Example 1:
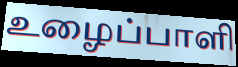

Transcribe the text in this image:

உழைப்பாளி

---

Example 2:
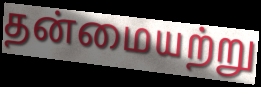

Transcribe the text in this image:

தன்மையற்று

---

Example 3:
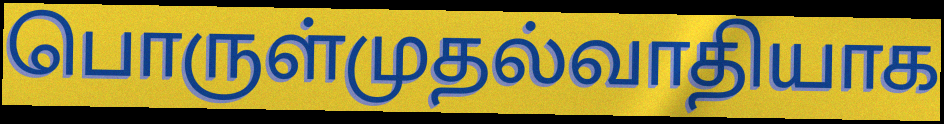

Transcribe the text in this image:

பொருள்முதல்வாதியாக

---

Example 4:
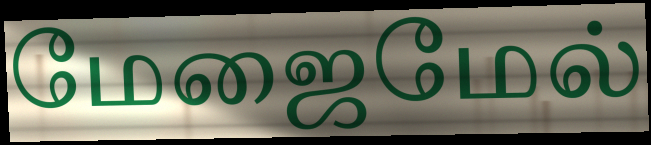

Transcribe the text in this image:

மேஜைமேல்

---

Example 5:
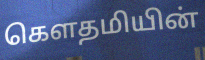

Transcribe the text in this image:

கெளதமியின்